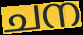
ചന